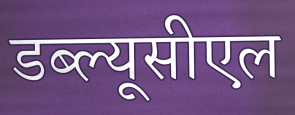
डब्ल्यूसीएल